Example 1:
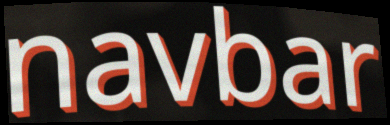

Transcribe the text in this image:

navbar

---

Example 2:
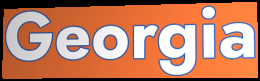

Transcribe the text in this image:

Georgia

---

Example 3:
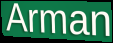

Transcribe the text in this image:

Arman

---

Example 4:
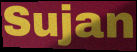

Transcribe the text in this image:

Sujan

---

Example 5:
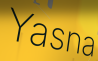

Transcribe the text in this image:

Yasna